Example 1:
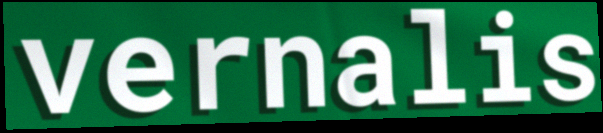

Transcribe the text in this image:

vernalis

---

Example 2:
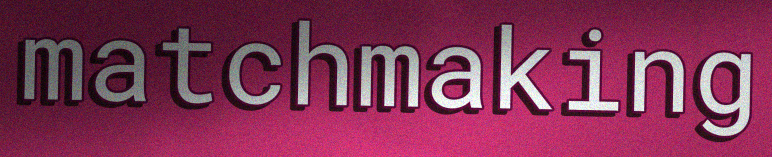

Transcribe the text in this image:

matchmaking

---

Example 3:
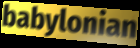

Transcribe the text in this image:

babylonian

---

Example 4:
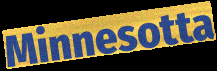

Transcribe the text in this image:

Minnesotta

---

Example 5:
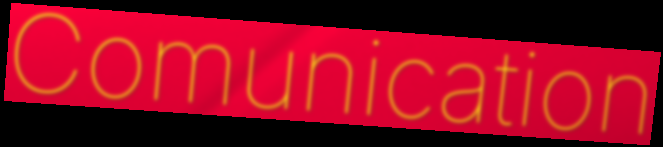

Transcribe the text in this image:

Comunication